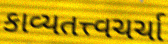
કાવ્યતત્ત્વચર્ચા